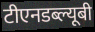
टीएनडब्ल्यूबी